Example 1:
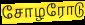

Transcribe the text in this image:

சோழரோடு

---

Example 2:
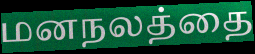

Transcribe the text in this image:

மனநலத்தை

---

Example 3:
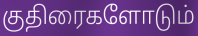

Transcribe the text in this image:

குதிரைகளோடும்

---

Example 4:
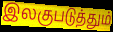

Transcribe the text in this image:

இலகுபடுத்தும்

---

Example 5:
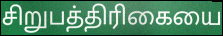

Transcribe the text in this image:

சிறுபத்திரிகையை